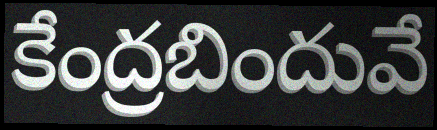
కేంద్రబిందువే